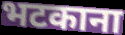
भटकाना